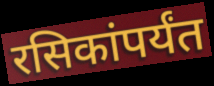
रसिकांपर्यंत